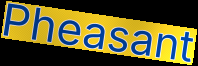
Pheasant